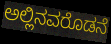
ಅಲ್ಲಿನವರೊಡನೆ